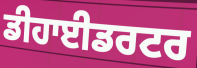
ਡੀਹਾਈਡਰਟਰ